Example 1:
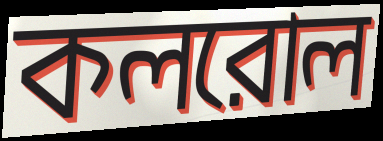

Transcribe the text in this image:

কলরোল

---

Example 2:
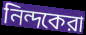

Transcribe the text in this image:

নিন্দকেরা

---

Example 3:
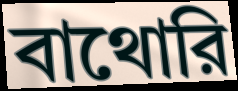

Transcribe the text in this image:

বাথোরি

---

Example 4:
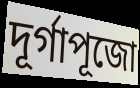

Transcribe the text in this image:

দূর্গাপূজো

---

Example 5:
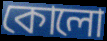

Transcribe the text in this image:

কোলো